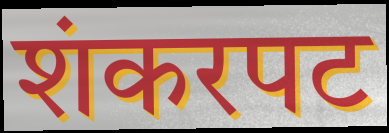
शंकरपट